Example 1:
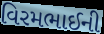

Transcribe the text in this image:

વિરમભાઈની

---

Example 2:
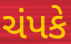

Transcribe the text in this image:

ચંપકે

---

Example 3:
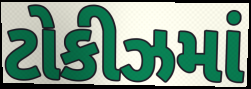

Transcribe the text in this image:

ટોકીઝમાં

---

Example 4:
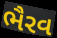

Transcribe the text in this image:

ભૈરવ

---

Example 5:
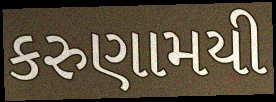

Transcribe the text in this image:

કરુણામયી